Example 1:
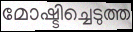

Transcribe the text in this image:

മോഷ്ടിച്ചെടുത്ത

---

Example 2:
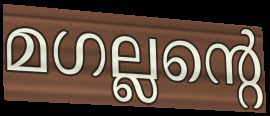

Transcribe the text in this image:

മഗല്ലന്റെ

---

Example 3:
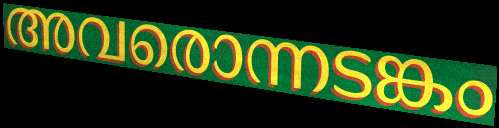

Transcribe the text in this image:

അവരൊന്നടങ്കം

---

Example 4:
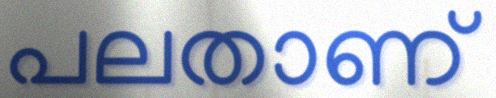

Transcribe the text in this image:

പലതാണ്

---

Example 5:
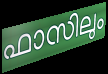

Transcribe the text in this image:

ഫാസിലും